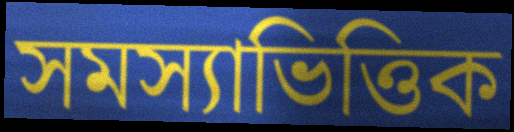
সমস্যাভিত্তিক